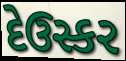
દેઉસ્કર